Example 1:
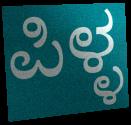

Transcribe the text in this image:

ಪಿಳ್ಳ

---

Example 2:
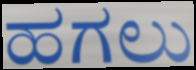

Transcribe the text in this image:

ಹಗಲು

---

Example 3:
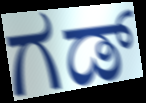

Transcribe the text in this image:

ಗಡ್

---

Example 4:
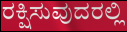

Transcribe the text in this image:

ರಕ್ಷಿಸುವುದರಲ್ಲಿ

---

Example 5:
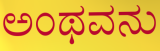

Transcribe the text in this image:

ಅಂಥವನು